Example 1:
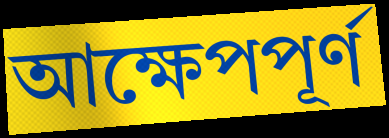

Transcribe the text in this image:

আক্ষেপপূর্ণ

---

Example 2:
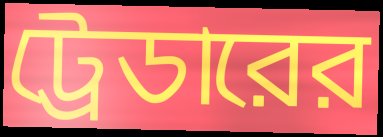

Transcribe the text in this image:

ট্রেডারের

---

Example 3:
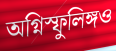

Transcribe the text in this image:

অগ্নিস্ফুলিঙ্গও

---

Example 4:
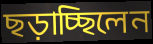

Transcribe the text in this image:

ছড়াচ্ছিলেন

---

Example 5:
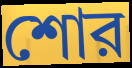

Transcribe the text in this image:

শোর